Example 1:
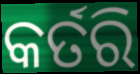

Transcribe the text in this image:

କର୍ତରି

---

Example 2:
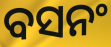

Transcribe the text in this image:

ବସନଂ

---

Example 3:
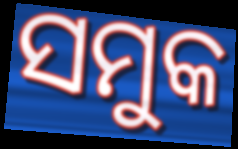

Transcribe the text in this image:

ସମୁକ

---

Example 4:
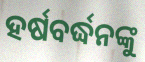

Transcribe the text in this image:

ହର୍ଷବର୍ଦ୍ଧନଙ୍କୁ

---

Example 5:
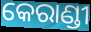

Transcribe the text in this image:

କେରାଣ୍ଡୀ